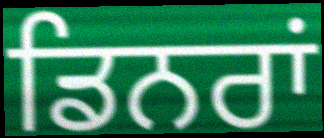
ਡਿਨਰਾਂ